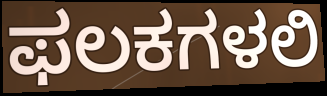
ಫಲಕಗಳಲಿ